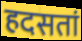
हदसतां